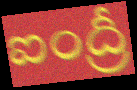
ఐంద్రీ